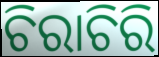
ଚିରାଚିରି